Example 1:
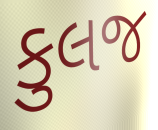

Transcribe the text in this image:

કુલજ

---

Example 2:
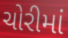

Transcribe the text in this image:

ચોરીમાં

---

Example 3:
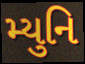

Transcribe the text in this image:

મ્યુનિ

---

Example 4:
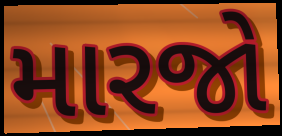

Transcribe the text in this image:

મારજો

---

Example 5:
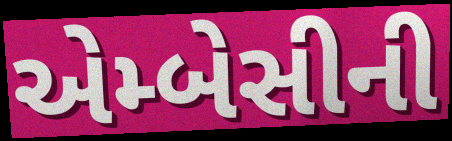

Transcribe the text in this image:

એમ્બેસીની